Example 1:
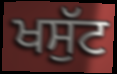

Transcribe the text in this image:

ਖਸੁੱਟ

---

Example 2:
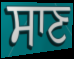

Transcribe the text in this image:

ਸਾਣ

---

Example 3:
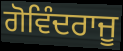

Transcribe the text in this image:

ਗੋਵਿੰਦਰਾਜੂ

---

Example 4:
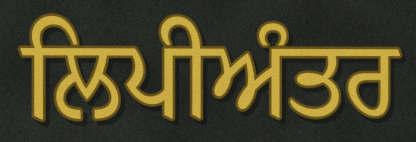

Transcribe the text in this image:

ਲਿਪੀਅੰਤਰ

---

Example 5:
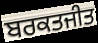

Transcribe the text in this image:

ਬਰਕਤਜੀਤ